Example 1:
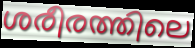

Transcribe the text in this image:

ശരീരത്തിലെ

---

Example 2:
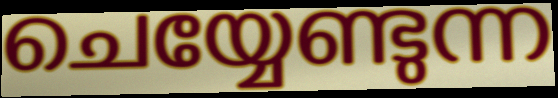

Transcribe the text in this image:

ചെയ്യേണ്ടുന്ന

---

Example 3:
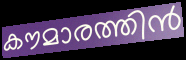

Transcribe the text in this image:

കൗമാരത്തിൻ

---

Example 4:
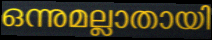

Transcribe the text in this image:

ഒന്നുമല്ലാതായി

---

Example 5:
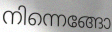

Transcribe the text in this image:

നിന്നെങ്ങോ